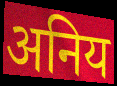
अनिय